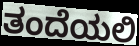
ತಂದೆಯಲಿ